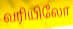
வரியிலோ